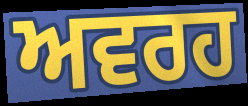
ਅਵਰਹ